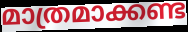
മാത്രമാക്കണ്ട